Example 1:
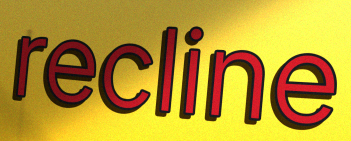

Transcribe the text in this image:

recline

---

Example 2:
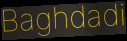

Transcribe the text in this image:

Baghdadi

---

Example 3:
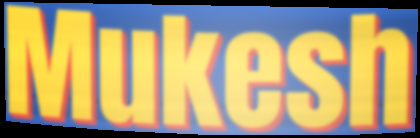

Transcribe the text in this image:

Mukesh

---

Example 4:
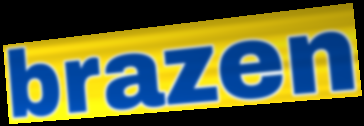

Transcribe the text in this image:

brazen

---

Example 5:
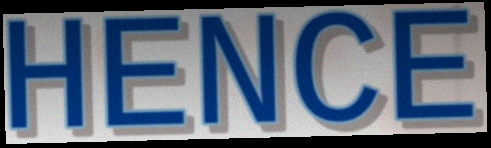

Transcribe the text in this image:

HENCE